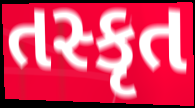
તસ્કૃત